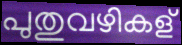
പുതുവഴികള്